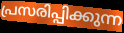
പ്രസരിപ്പിക്കുന്ന